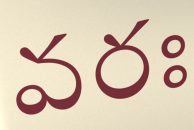
వరః